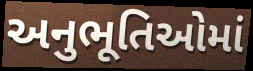
અનુભૂતિઓમાં